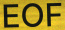
EOF